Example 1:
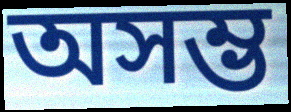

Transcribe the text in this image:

অসম্ভ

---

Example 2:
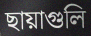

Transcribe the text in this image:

ছায়াগুলি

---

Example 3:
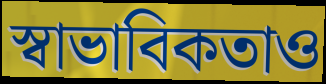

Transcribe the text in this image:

স্বাভাবিকতাও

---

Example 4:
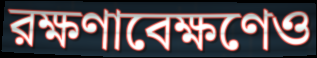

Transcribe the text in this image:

রক্ষণাবেক্ষণেও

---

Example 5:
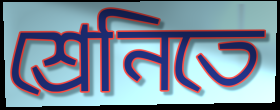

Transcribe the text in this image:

শ্রেনিতে